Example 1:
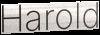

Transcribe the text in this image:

Harold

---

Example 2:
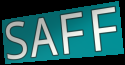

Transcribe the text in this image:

SAFF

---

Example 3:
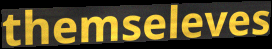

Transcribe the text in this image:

themseleves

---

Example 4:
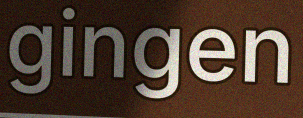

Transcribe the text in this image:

gingen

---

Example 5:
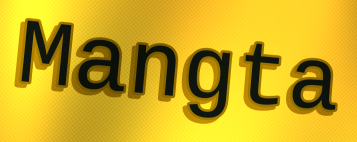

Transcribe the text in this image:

Mangta